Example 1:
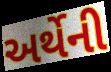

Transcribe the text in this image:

અર્થેની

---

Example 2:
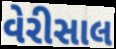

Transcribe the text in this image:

વેરીસાલ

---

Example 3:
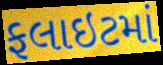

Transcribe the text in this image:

ફલાઇટમાં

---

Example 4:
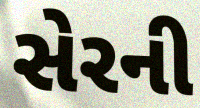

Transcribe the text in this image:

સેરની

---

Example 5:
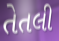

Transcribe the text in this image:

તેતલી